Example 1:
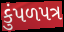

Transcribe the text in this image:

કુંપળપત્ર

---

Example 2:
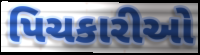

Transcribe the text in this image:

પિચકારીઓ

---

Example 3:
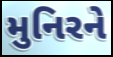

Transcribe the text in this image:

મુનિરને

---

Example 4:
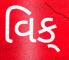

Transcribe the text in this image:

વિક્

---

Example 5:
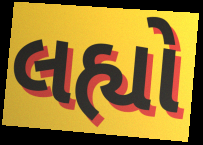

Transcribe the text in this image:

લહ્યો